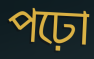
পঢ়ো